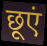
छूएं